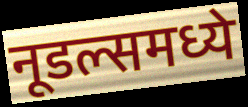
नूडल्समध्ये